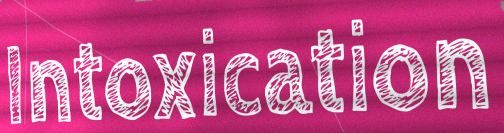
Intoxication